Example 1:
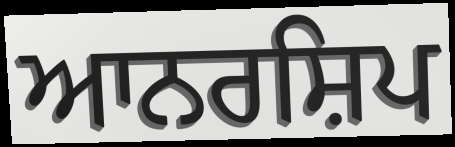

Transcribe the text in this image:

ਆਨਰਸ਼ਿਪ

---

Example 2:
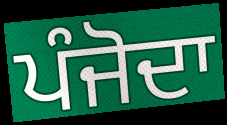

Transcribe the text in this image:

ਪੰਜੋਦਾ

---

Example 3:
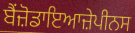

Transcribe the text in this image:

ਬੈਂਜ਼ੋਡਾਇਆਜ਼ੇਪੀਨਸ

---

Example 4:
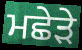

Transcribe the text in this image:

ਮਛੇੜੇ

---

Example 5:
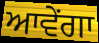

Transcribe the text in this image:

ਆਵੇਂਗਾ